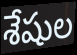
శేషుల